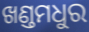
ଖଣ୍ଡମଧୁର